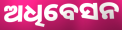
ଅଧିବେସନ